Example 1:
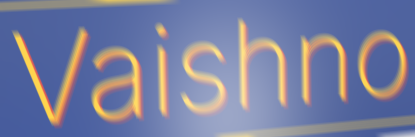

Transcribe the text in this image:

Vaishno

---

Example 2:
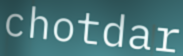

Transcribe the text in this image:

chotdar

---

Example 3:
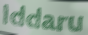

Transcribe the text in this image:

Iddaru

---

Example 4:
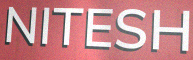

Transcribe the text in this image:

NITESH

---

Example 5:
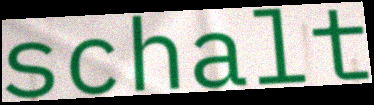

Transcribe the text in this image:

schalt